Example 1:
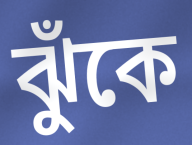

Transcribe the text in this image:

ঝুঁকে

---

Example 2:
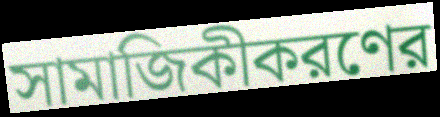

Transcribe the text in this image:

সামাজিকীকরণের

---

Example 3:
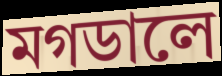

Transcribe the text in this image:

মগডালে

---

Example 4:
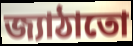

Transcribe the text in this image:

জ্যাঠাতো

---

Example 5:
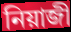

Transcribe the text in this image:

নিয়াজী